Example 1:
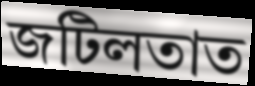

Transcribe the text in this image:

জটিলতাত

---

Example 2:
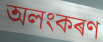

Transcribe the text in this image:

অলংকৰণ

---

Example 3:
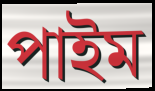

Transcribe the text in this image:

পাইম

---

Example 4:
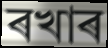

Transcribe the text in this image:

ৰখাৰ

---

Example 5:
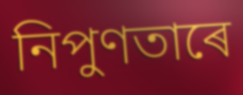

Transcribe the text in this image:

নিপুণতাৰে